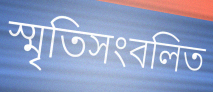
স্মৃতিসংবলিত